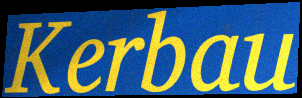
Kerbau